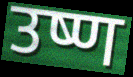
उष्ण